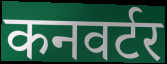
कनवर्टर